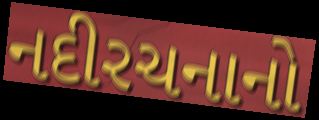
નદીરચનાનો